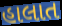
હાલાત